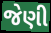
જેણી